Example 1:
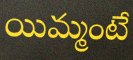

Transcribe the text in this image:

యిమ్మంటే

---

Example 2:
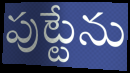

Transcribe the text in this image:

పుట్టేను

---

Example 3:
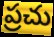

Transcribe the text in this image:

ప్రచు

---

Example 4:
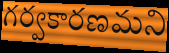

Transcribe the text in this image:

గర్వకారణమని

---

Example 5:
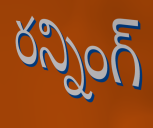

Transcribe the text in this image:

రన్నింగ్